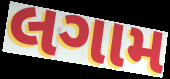
લગામ